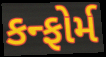
કન્ફોર્મ